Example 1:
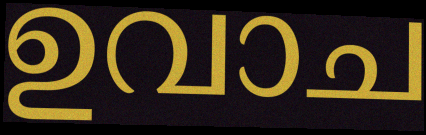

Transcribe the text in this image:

ഉവാച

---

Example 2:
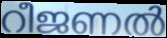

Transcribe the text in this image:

റീജണൽ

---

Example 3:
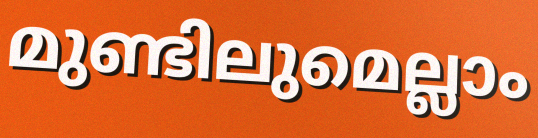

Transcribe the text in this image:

മുണ്ടിലുമെല്ലാം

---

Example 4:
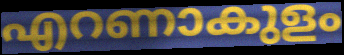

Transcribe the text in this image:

എറണാകുളം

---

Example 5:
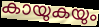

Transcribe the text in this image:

കായുകയും